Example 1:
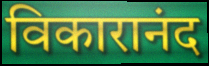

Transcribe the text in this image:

विकारानंद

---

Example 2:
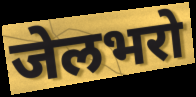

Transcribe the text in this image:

जेलभरो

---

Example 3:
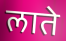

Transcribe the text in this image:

लाते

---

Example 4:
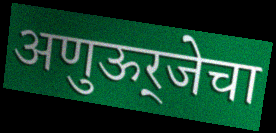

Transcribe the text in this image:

अणुऊर्जेचा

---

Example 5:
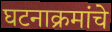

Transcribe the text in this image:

घटनाक्रमांचे